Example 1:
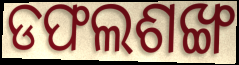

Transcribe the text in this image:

ଡଫଲଶଙ୍ଖ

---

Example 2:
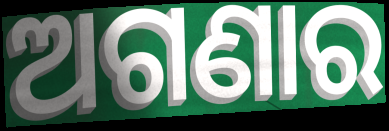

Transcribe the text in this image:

ଅଗଣାର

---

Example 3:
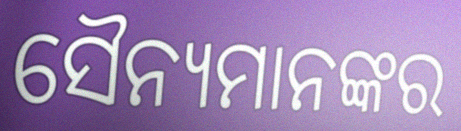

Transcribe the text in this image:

ସୈନ୍ୟମାନଙ୍କର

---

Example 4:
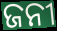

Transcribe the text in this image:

ଜନୀ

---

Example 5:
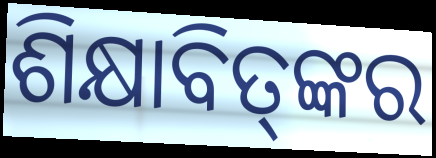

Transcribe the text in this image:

ଶିକ୍ଷାବିତ୍‌ଙ୍କର